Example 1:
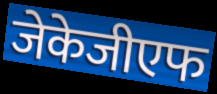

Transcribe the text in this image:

जेकेजीएफ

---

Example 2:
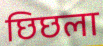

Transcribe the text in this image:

छिछला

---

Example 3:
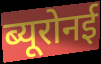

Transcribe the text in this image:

ब्यूरोनई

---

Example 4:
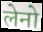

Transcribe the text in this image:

लेनो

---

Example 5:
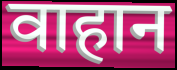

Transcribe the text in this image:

वाहान